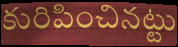
కురిపించినట్టు